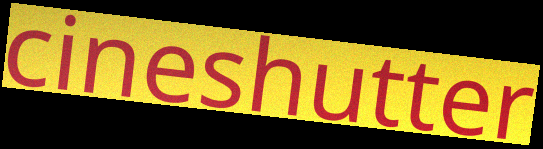
cineshutter